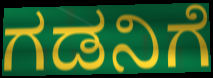
ಗಡನಿಗೆ